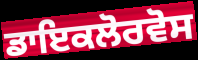
ਡਾਇਕਲੋਰਵੋਸ